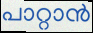
പാറ്റാൻ